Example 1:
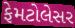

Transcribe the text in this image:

ફેમટોલેસર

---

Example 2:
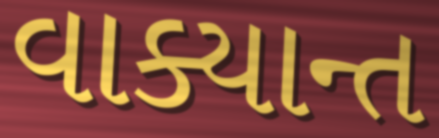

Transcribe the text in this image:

વાક્યાન્ત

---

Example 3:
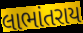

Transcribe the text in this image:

લાભાંતરાય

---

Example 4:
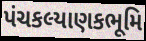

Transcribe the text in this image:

પંચકલ્યાણકભૂમિ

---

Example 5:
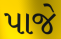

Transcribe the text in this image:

પાજે